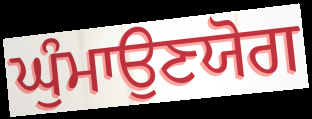
ਘੁੰਮਾਉਣਯੋਗ